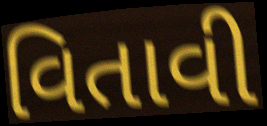
વિતાવી